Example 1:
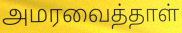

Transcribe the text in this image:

அமரவைத்தாள்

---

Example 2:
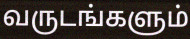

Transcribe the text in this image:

வருடங்களும்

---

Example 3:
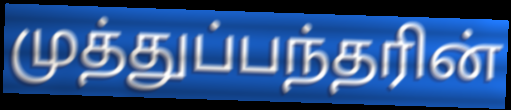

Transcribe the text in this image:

முத்துப்பந்தரின்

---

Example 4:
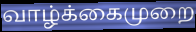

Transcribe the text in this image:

வாழ்க்கைமுறை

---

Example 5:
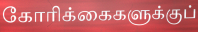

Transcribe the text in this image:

கோரிக்கைகளுக்குப்